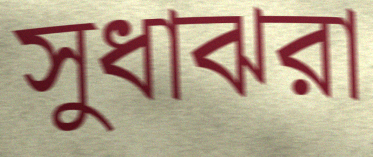
সুধাঝরা